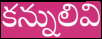
కన్నులివి